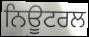
ਨਿਊਟਰਲ